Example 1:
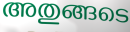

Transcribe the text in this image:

അതുങ്ങടെ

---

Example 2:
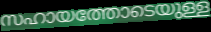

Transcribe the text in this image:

സഹായത്തോടെയുള്ള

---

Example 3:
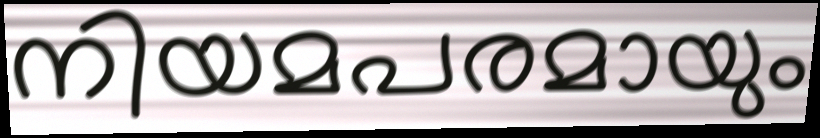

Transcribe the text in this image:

നിയമപരമായും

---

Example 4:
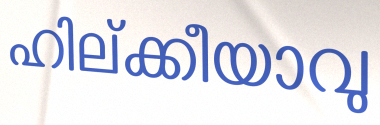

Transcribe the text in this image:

ഹില്ക്കീയാവു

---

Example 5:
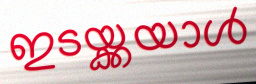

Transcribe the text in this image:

ഇടയ്ക്കയാൾ